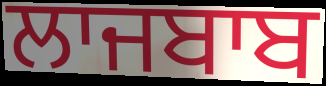
ਲਾਜਬਾਬ